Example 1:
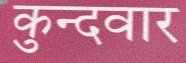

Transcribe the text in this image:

कुन्दवार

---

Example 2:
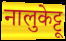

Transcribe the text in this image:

नालुकेट्टू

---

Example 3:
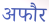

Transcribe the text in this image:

अफौर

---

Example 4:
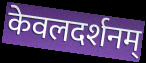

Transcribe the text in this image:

केवलदर्शनम्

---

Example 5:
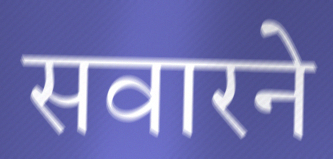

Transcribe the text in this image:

सवारने